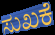
ಸುಖಕೆ